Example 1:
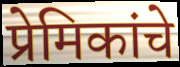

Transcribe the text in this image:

प्रेमिकांचे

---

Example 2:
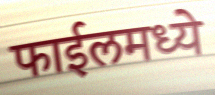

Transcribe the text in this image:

फाईलमध्ये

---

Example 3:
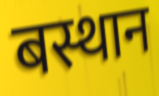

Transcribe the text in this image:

बस्थान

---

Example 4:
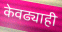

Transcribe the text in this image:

केवढ्याही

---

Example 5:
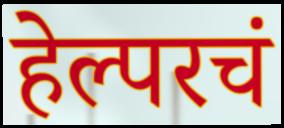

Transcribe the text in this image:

हेल्परचं